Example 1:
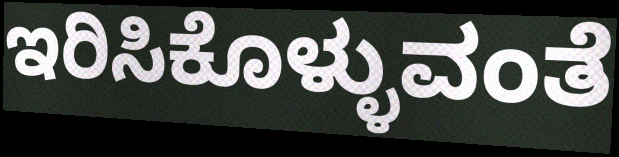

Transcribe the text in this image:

ಇರಿಸಿಕೊಳ್ಳುವಂತೆ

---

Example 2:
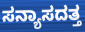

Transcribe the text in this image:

ಸನ್ಯಾಸದತ್ತ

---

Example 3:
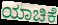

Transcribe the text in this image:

ಯಾಚಿಕೆ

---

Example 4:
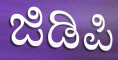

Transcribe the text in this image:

ಜಿಡಿಪಿ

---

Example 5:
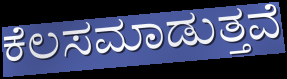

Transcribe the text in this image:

ಕೆಲಸಮಾಡುತ್ತವೆ